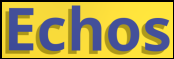
Echos